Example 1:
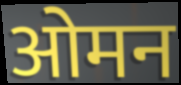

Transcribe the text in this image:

ओमन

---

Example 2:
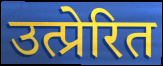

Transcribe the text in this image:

उत्प्रेरित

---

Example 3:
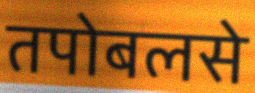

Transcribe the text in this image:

तपोबलसे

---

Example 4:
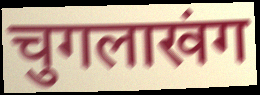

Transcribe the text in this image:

चुगलाखंग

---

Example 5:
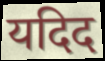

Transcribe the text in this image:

यदिद